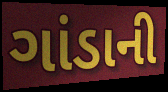
ગાંડાની